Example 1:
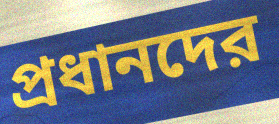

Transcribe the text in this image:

প্রধানদের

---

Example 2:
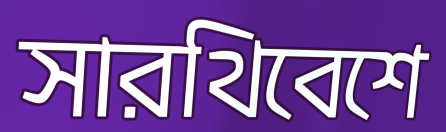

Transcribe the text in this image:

সারথিবেশে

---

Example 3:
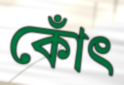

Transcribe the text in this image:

কোঁৎ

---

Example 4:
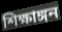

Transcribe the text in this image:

শিক্ষাঙ্গন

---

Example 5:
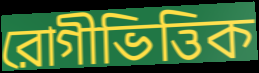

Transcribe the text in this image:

রোগীভিত্তিক